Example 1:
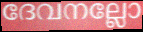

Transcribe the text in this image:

ദേവനല്ലോ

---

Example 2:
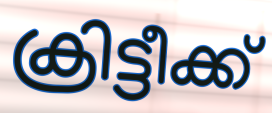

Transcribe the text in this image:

ക്രിട്ടീക്ക്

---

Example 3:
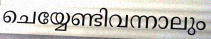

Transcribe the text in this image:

ചെയ്യേണ്ടിവന്നാലും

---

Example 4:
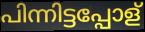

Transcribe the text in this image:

പിന്നിട്ടപ്പോള്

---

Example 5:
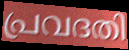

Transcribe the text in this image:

പ്രവദതി